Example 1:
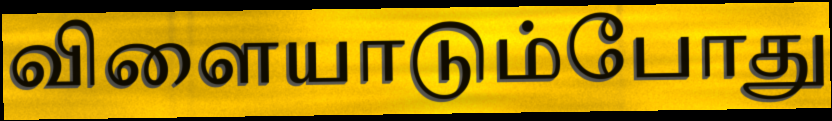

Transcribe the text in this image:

விளையாடும்போது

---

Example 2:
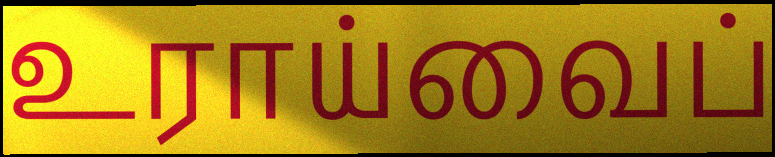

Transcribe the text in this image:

உராய்வைப்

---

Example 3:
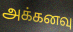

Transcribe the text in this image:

அக்கனவு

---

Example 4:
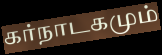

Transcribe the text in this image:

கர்நாடகமும்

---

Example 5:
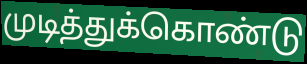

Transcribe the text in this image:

முடித்துக்கொண்டு